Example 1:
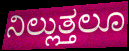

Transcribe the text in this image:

ನಿಲ್ಲುತ್ತಲೂ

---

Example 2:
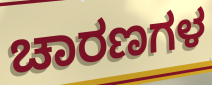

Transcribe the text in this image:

ಚಾರಣಗಳ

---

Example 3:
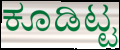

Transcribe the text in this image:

ಕೂಡಿಟ್ಟ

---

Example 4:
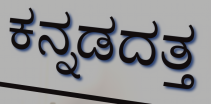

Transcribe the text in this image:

ಕನ್ನಡದತ್ತ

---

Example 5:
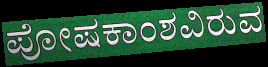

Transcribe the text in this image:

ಪೋಷಕಾಂಶವಿರುವ